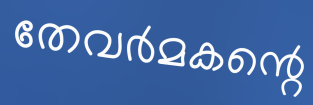
തേവർമകന്റെ